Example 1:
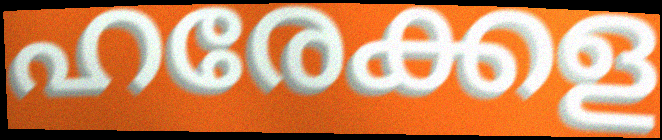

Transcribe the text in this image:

ഹരേക്കള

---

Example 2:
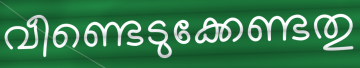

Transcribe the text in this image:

വീണ്ടെടുക്കേണ്ടതു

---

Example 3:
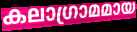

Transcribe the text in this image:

കലാഗ്രാമമായ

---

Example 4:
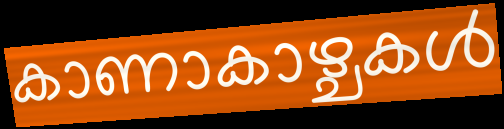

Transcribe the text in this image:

കാണാകാഴ്ചകൾ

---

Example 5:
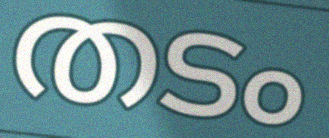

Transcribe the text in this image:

തടം